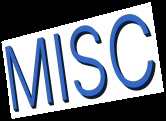
MISC